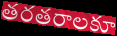
తరతరాలకూ